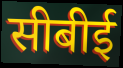
सीबीई